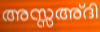
അസ്സഅ്ദി